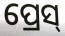
ପ୍ରେସ୍